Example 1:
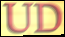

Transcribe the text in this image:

UD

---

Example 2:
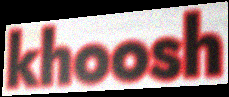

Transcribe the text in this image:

khoosh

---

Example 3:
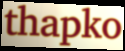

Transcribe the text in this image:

thapko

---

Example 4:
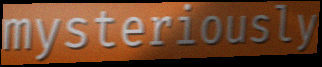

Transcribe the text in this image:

mysteriously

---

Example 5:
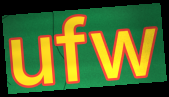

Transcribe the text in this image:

ufw